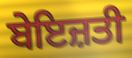
ਬੇਇਜ਼ਤੀ